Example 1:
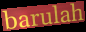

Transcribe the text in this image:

barulah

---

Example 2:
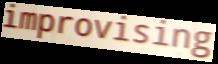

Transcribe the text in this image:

improvising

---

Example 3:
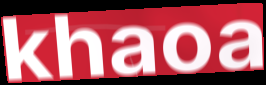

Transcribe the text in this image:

khaoa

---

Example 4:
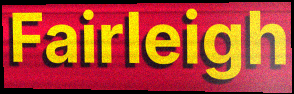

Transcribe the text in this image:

Fairleigh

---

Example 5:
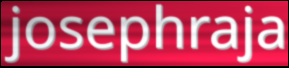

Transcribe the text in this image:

josephraja